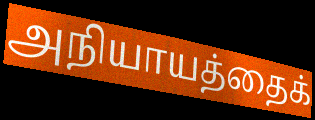
அநியாயத்தைக்